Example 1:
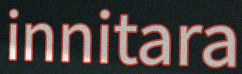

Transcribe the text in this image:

innitara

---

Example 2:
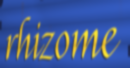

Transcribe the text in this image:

rhizome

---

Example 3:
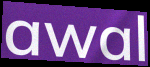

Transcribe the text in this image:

awal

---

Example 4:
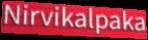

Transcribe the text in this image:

Nirvikalpaka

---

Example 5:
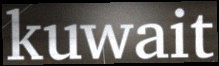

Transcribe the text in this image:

kuwait